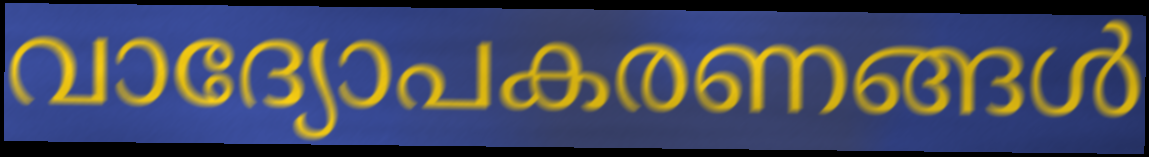
വാദ്യോപകരണങ്ങൾ